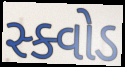
સ્ક્વોડ